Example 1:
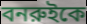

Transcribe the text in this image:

বনরুইকে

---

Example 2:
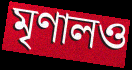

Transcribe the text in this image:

মৃণালও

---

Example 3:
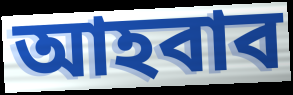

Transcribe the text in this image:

আহবাব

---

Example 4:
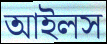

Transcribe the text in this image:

আইলস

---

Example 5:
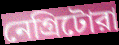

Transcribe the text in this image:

নেগ্রিটোরা